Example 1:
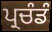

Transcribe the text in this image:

ਪ੍ਰਚੰਡੰ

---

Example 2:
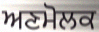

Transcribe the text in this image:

ਅਣਮੋਲਕ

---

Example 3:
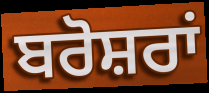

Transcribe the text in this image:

ਬਰੋਸ਼ਰਾਂ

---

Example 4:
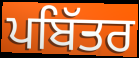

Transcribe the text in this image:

ਪਬਿੱਤਰ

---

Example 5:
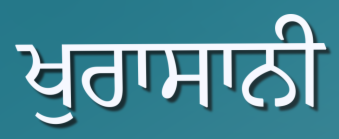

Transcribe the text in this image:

ਖੁਰਾਸਾਨੀ